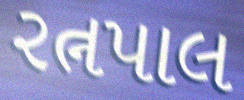
રત્નપાલ